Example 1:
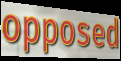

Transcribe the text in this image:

opposed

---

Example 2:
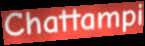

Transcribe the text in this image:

Chattampi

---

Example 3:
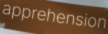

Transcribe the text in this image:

apprehension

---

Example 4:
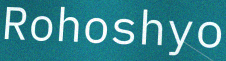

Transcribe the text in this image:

Rohoshyo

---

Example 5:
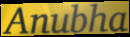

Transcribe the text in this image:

Anubha